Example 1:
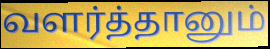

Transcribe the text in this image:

வளர்த்தானும்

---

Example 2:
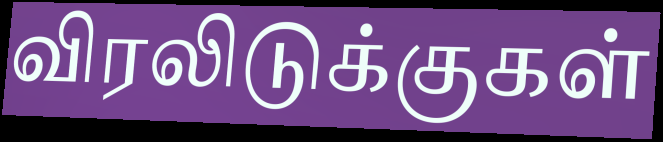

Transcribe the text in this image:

விரலிடுக்குகள்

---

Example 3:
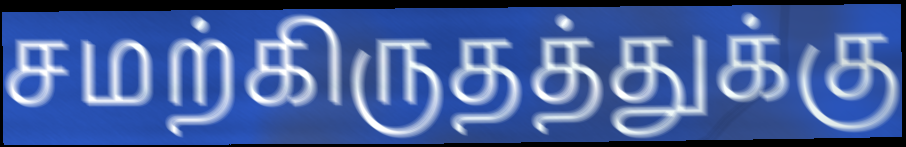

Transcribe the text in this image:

சமற்கிருதத்துக்கு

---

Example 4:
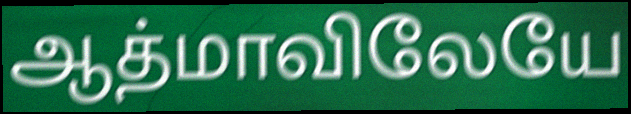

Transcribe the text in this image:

ஆத்மாவிலேயே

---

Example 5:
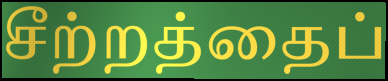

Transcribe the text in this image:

சீற்றத்தைப்